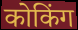
कोकिंग